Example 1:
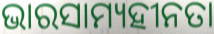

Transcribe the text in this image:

ଭାରସାମ୍ୟହୀନତା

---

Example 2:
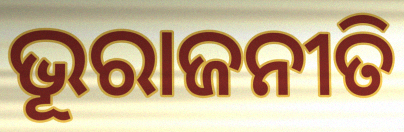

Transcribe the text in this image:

ଭୂରାଜନୀତି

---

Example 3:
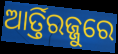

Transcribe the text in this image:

ଆର୍ତ୍ତିରଜ୍ଜୁରେ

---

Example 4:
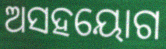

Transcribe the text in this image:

ଅସହୟୋଗ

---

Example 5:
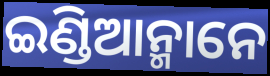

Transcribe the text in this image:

ଇଣ୍ଡିଆନ୍ମାନେ